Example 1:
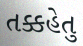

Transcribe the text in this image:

તક્કહેતુ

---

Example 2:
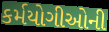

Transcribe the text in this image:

કર્મયોગીઓની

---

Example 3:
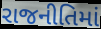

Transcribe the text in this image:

રાજનીતિમાં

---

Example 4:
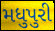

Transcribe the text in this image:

મધુપુરી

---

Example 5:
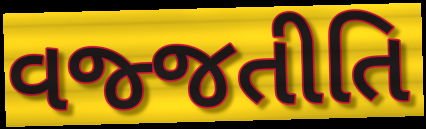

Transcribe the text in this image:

વજ્જતીતિ